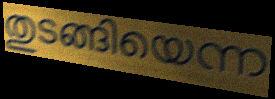
തുടങ്ങിയെന്ന